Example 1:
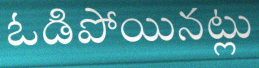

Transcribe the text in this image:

ఓడిపోయినట్లు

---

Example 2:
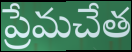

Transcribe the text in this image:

ప్రేమచేత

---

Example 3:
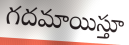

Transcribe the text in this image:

గదమాయిస్తూ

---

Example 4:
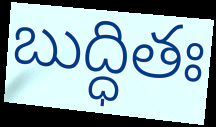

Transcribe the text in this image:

బుద్ధితః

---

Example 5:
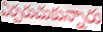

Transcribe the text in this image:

ఏర్పరుచుకున్నారు